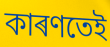
কাৰণতেই